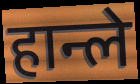
हान्ले